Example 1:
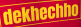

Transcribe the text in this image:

dekhechho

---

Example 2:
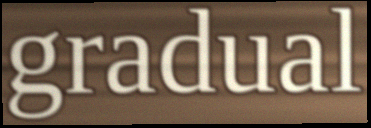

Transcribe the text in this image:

gradual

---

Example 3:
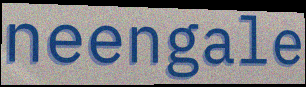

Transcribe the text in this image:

neengale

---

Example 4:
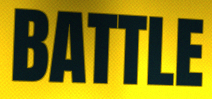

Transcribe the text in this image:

BATTLE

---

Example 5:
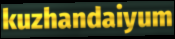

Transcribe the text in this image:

kuzhandaiyum